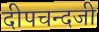
दीपचन्दजी